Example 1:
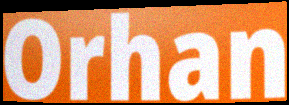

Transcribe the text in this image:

Orhan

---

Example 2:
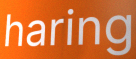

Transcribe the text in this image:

haring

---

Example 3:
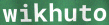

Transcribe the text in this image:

wikhuto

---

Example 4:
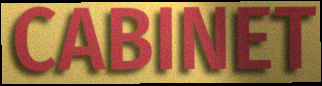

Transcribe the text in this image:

CABINET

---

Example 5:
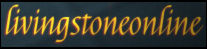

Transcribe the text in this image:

livingstoneonline